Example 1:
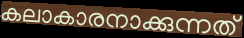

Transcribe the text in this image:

കലാകാരനാക്കുന്നത്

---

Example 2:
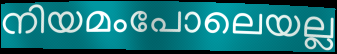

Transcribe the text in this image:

നിയമംപോലെയല്ല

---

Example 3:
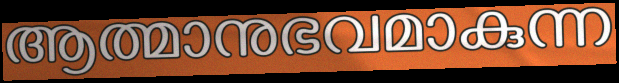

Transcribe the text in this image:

ആത്മാനുഭവമാകുന്ന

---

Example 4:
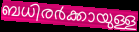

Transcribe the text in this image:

ബധിരർക്കായുള്ള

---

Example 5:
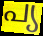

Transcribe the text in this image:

പ്യ